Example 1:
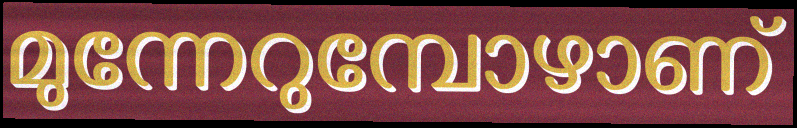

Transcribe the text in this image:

മുന്നേറുമ്പോഴാണ്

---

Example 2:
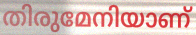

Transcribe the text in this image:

തിരുമേനിയാണ്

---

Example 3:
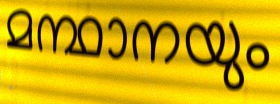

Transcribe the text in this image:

മന്ഥാനയും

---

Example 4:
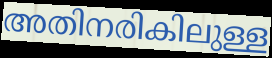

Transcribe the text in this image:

അതിനരികിലുള്ള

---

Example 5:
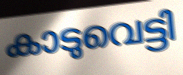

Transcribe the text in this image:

കാടുവെട്ടി